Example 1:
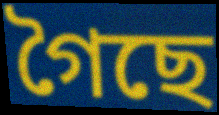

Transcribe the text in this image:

গৈছে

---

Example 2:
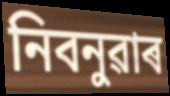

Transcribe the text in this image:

নিবনুৱাৰ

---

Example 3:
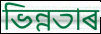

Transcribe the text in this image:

ভিন্নতাৰ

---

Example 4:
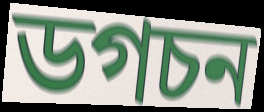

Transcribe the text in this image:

ডগচন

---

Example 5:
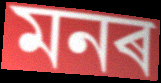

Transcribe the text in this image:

মনৰ